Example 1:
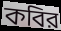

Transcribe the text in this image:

কবির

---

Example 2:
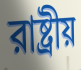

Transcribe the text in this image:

রাষ্ট্রীয়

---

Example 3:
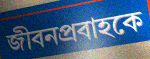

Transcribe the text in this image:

জীবনপ্রবাহকে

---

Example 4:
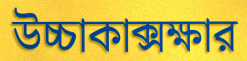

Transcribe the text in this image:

উচ্চাকাক্সক্ষার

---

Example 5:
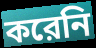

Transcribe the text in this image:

করেনি